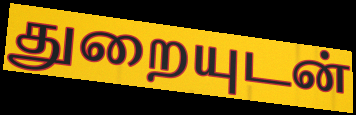
துறையுடன்